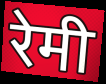
रेमी